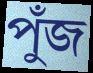
পুঁজ